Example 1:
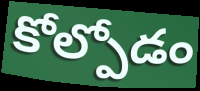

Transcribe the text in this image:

కోల్పోడం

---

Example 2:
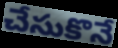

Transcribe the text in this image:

చేసుకొనే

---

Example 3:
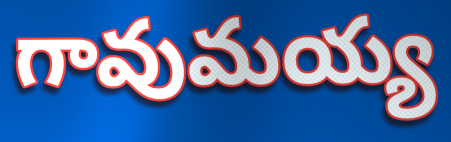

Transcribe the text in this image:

గావుమయ్య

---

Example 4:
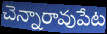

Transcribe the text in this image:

చెన్నారావుపేట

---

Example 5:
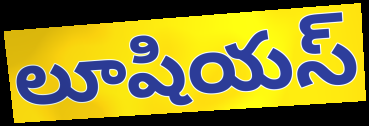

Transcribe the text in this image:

లూషియస్